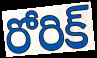
రోరిక్